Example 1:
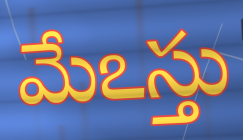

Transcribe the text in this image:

మేఽస్తు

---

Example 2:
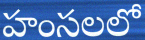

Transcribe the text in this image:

హంసలలో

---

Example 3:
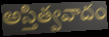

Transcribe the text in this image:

అస్తిత్వవాదం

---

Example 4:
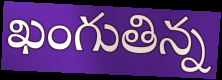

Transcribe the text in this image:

ఖంగుతిన్న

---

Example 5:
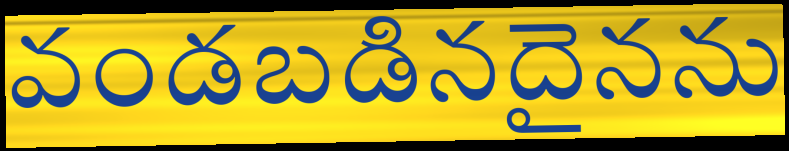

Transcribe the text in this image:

వండబడినదైనను